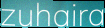
zuhaira